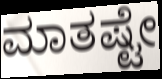
ಮಾತಷ್ಟೇ